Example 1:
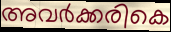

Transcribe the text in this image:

അവർക്കരികെ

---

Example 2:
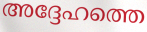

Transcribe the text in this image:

അദ്ദേഹത്തെ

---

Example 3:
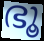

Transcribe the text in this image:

ഭൂ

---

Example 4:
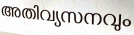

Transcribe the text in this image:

അതിവ്യസനവും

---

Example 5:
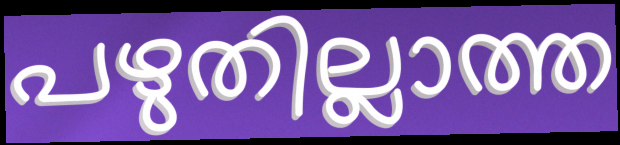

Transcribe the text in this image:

പഴുതില്ലാത്ത